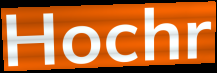
Hochr